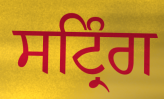
ਸਟ੍ਰਿੰਗ